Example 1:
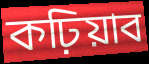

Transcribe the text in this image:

কঢ়িয়াব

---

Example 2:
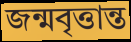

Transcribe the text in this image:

জন্মবৃত্তান্ত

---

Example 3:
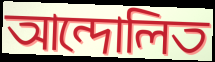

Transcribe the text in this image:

আন্দোলিত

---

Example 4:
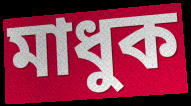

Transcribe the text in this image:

মাধুক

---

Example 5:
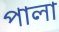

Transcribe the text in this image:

পালা